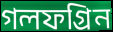
গলফগ্রিন